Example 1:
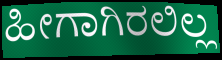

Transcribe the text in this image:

ಹೀಗಾಗಿರಲಿಲ್ಲ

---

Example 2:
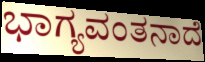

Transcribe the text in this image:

ಭಾಗ್ಯವಂತನಾದೆ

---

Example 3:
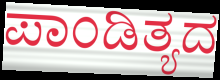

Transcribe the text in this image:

ಪಾಂಡಿತ್ಯದ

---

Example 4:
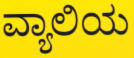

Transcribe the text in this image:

ವ್ಯಾಲಿಯ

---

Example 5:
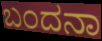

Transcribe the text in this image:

ಬಂದನಾ